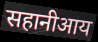
सहानीआय